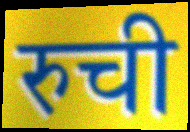
रुची